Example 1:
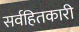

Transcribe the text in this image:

सर्वहितकारी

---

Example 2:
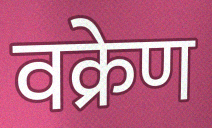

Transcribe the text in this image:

वक्रेण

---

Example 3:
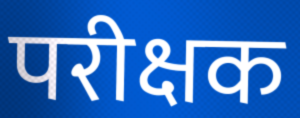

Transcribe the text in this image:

परीक्षक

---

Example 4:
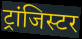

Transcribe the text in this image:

ट्रांजिस्टर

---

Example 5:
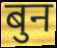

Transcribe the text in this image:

बुन